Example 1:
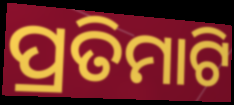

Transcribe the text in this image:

ପ୍ରତିମାଟି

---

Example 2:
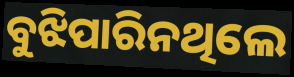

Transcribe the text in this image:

ବୁଝିପାରିନଥିଲେ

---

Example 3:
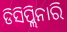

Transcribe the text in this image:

ଡିସିପ୍ଲିନାରି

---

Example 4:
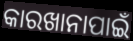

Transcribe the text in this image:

କାରଖାନାପାଇଁ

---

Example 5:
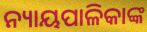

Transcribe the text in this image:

ନ୍ୟାୟପାଳିକାଙ୍କ